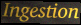
Ingestion